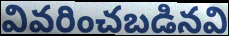
వివరించబడినవి